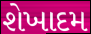
શેખાદમ